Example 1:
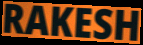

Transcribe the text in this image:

RAKESH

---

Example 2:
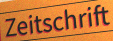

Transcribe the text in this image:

Zeitschrift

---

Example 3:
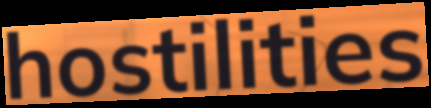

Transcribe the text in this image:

hostilities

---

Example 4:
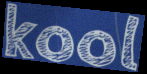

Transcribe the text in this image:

kool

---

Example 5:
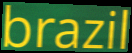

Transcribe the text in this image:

brazil